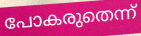
പോകരുതെന്ന്